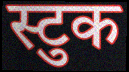
स्टुक